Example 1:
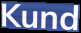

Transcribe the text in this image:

Kund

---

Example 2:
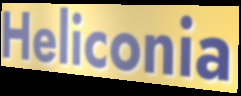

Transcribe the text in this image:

Heliconia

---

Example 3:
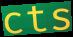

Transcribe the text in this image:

cts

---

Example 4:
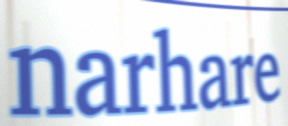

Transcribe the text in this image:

narhare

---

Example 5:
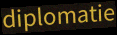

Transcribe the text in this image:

diplomatie